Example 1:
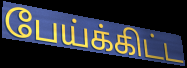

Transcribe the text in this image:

பேய்க்கிட்ட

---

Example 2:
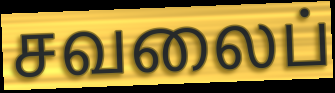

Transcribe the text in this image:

சவலைப்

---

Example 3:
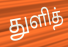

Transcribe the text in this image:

துளித்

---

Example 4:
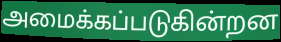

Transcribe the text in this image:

அமைக்கப்படுகின்றன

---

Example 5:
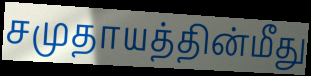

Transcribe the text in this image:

சமுதாயத்தின்மீது